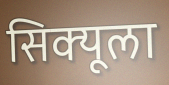
सिक्यूला